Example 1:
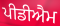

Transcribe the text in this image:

ਪੀਡੀਐਮ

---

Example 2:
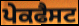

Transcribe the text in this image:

ਪੇਕਫੈਸਟ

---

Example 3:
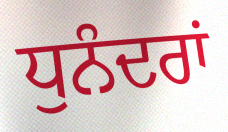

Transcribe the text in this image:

ਧੁਨੰਦਰਾਂ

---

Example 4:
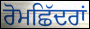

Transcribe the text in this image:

ਰੋਮਛਿੱਦਰਾਂ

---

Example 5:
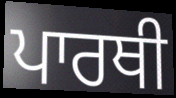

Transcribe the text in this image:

ਪਾਰਥੀ